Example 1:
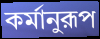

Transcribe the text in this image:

কর্মানুরূপ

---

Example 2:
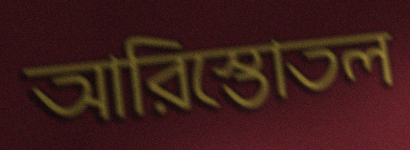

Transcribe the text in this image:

আরিস্তোতল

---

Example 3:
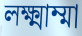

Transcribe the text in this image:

লক্ষ্মাম্মা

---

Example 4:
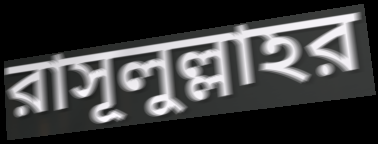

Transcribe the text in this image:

রাসূলুল্লাহর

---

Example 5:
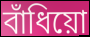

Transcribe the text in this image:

বাঁধিয়ো